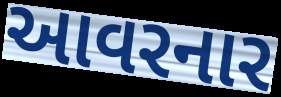
આવરનાર